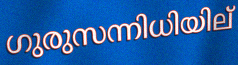
ഗുരുസന്നിധിയില്